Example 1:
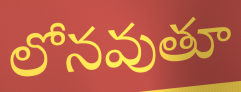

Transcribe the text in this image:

లోనవుతూ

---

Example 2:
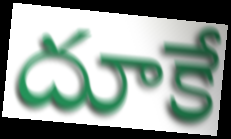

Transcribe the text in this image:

దూకే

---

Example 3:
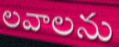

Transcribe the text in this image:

లవాలను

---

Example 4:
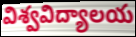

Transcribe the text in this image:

విశ్వవిద్యాలయ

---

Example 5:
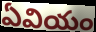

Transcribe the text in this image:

ఏవియం